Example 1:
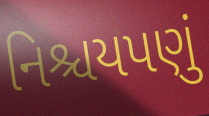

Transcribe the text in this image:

નિશ્ચયપણું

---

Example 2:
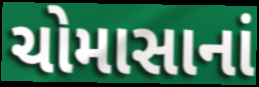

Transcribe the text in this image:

ચોમાસાનાં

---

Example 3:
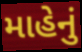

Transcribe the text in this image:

માહેનું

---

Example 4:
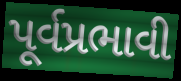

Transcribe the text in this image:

પૂર્વપ્રભાવી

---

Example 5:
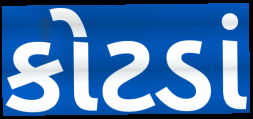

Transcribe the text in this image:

કોટડાં